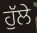
ਹੁੱਲੇ